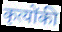
कृत्योंकी